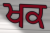
ਖਕ